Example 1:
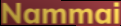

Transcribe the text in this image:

Nammai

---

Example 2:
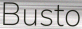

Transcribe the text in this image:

Busto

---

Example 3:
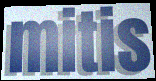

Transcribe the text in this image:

mitis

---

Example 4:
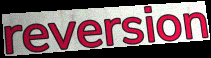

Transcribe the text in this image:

reversion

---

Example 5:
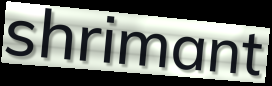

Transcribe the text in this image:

shrimant